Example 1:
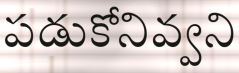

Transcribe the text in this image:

పడుకోనివ్వని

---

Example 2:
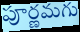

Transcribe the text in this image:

పూర్ణమగు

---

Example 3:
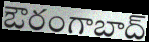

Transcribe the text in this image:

ఔరంగాబాద్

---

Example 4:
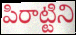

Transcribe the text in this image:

పిరాట్టిని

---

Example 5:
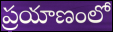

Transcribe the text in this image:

ప్రయాణంలో